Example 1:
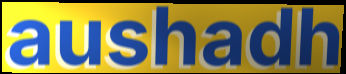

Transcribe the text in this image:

aushadh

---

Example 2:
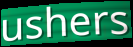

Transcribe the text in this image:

ushers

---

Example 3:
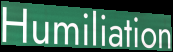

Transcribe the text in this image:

Humiliation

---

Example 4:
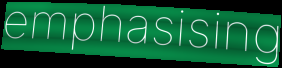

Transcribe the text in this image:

emphasising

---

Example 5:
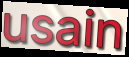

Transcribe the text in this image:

usain